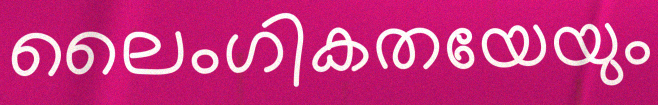
ലൈംഗികതയേയും